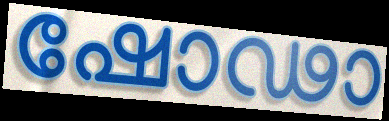
ഷോഢാ